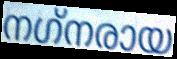
നഗ്‌നരായ